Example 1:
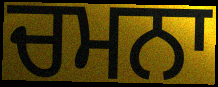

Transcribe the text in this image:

ਚਮਨਾ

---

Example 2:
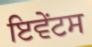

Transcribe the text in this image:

ਇਵੇੰਟਸ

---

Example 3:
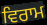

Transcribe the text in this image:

ਵਿਰਾਮ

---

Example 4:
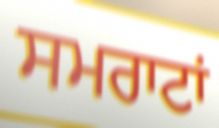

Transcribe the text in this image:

ਸਮਰਾਟਾਂ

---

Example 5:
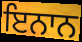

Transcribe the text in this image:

ਇਨਾਨ